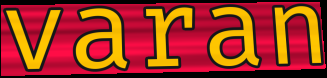
varan